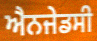
ਐਨਜੇਡਸੀ